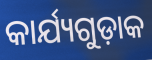
କାର୍ଯ୍ୟଗୁଡ଼ାକ